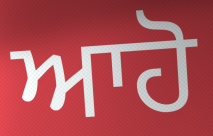
ਆਹੋ